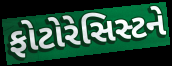
ફોટોરેસિસ્ટને